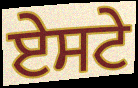
ਏਸਟੇ